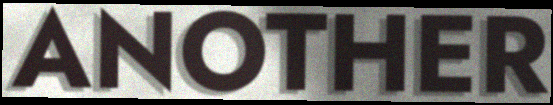
ANOTHER